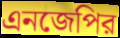
এনজেপির